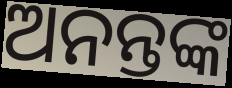
ଅନନ୍ତଙ୍କ